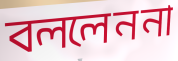
বললেননা